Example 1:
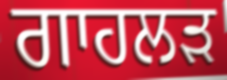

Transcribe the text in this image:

ਗਾਹਲੜ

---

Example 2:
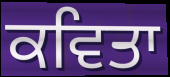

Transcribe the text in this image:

ਕਵਿਤਾ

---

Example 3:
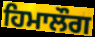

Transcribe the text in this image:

ਹਿਮਾਲੌਗ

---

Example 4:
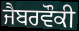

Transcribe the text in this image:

ਜੈਬਰਵੌਕੀ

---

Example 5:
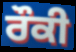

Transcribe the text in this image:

ਰੌਕੀ